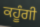
ਕਹੂੰਗੀ